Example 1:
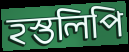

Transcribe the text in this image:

হস্তলিপি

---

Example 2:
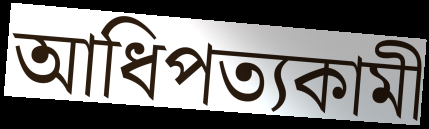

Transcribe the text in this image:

আধিপত্যকামী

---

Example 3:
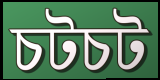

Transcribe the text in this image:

চটচট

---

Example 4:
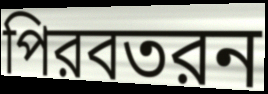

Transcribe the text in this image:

পিরবতরন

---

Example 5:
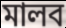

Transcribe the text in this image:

মালব